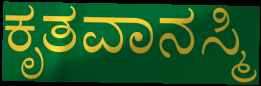
ಕೃತವಾನಸ್ಮಿ